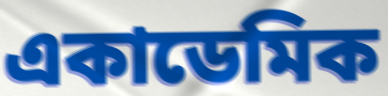
একাডেমিক